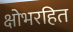
क्षोभरहित